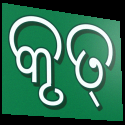
କୃତ୍